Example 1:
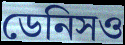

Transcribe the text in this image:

ডেনিসও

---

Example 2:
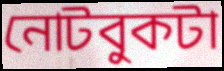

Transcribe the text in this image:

নোটবুকটা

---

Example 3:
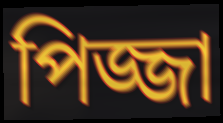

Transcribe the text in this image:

পিজ্জা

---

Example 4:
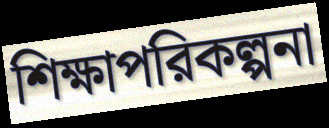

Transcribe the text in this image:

শিক্ষাপরিকল্পনা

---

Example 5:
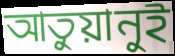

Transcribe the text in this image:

আতুয়ানুই